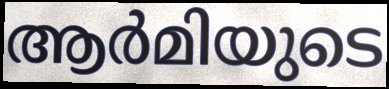
ആർമിയുടെ